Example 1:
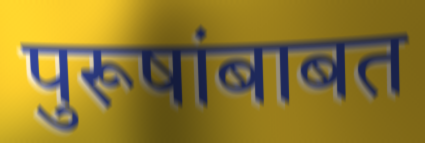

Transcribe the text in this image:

पुरूषांबाबत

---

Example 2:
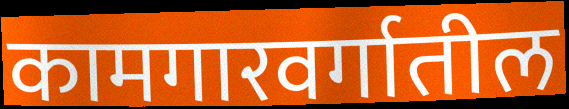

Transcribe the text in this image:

कामगारवर्गातील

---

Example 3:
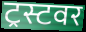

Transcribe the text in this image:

ट्रस्टवर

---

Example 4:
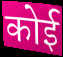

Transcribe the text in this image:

कोई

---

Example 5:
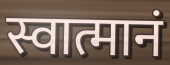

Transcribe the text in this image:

स्वात्मानं